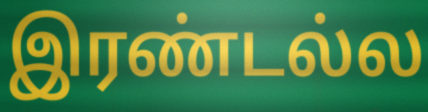
இரண்டல்ல